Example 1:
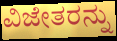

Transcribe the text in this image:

ವಿಜೇತರನ್ನು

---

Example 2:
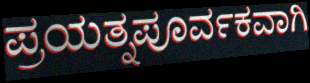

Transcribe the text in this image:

ಪ್ರಯತ್ನಪೂರ್ವಕವಾಗಿ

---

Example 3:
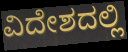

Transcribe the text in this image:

ವಿದೇಶದಲ್ಲಿ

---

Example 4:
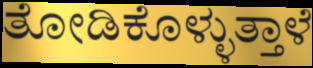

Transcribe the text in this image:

ತೋಡಿಕೊಳ್ಳುತ್ತಾಳೆ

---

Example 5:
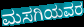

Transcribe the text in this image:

ಮಸಗಿಯವರ